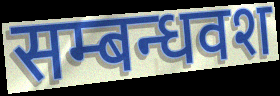
सम्बन्धवश